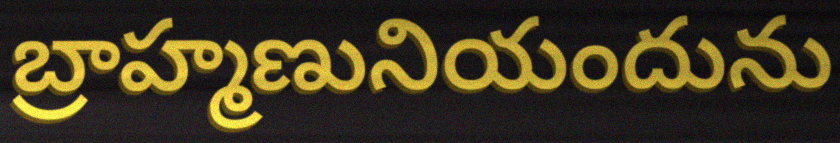
బ్రాహ్మణునియందును